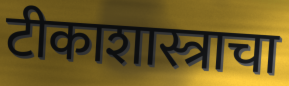
टीकाशास्त्राचा